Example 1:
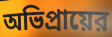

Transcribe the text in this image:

অভিপ্রায়ের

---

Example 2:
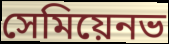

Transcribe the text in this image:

সেমিয়েনভ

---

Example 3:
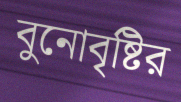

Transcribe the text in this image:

বুনোবৃষ্টির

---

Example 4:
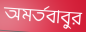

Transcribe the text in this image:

অমর্তবাবুর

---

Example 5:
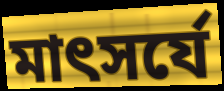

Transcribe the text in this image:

মাৎসর্যে